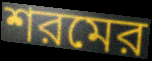
শরমের